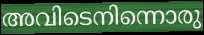
അവിടെനിന്നൊരു